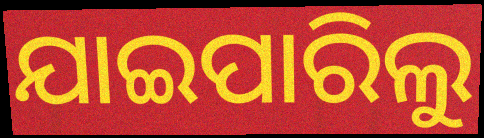
ଯାଇପାରିଲୁ